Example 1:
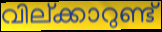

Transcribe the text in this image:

വില്ക്കാറുണ്ട്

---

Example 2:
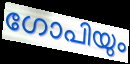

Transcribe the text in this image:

ഗോപിയും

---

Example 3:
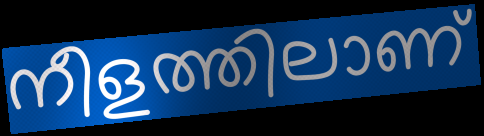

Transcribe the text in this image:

നീളത്തിലാണ്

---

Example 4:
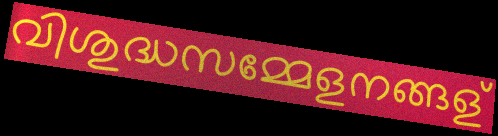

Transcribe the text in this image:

വിശുദ്ധസമ്മേളനങ്ങള്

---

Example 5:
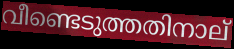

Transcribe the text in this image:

വീണ്ടെടുത്തതിനാല്